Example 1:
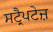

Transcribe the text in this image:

ਸਟ੍ਰੈਪਟੇਜ਼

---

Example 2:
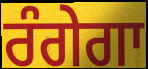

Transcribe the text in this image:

ਰੰਗੇਗਾ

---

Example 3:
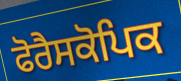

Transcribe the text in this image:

ਫੋਰੈਸਕੋਪਿਕ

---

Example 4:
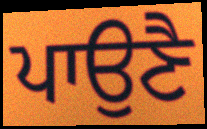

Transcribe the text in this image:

ਪਾਉਣੈ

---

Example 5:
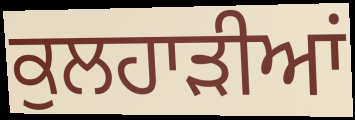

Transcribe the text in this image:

ਕੁਲਹਾੜੀਆਂ